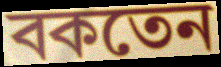
বকতেন